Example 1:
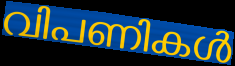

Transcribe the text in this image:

വിപണികൾ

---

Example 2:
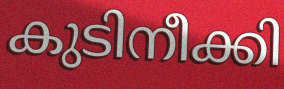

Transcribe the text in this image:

കുടിനീക്കി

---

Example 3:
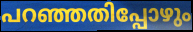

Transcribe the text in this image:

പറഞ്ഞതിപ്പോഴും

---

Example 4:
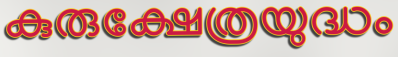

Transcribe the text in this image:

കുരുക്ഷേത്രയുദ്ധം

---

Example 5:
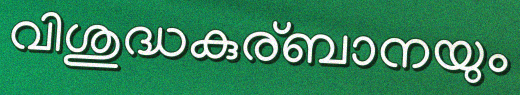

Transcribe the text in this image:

വിശുദ്ധകുര്ബാനയും